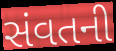
સંવતની